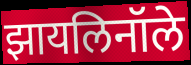
झायलिनॉले